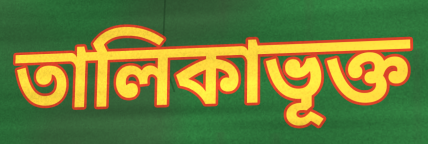
তালিকাভূক্ত